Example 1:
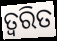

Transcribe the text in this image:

ତ୍ବରିତ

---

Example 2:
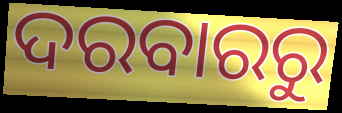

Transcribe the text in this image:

ଦରବାରରୁ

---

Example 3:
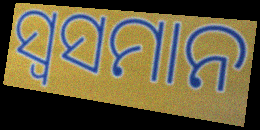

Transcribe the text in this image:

ସ୍ୱସମାନ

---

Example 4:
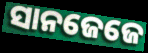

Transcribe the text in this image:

ସାନଜେଜେ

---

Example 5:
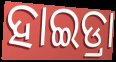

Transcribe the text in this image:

ହାଇଡ୍ରା